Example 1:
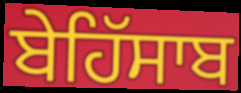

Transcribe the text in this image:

ਬੇਹਿੱਸਾਬ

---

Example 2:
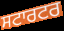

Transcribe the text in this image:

ਸਟਾਰਟਰ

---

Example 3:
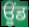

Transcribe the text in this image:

ਊਂਡ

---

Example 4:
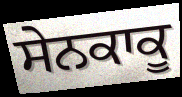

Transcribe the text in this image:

ਸੇਨਕਾਕੂ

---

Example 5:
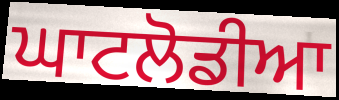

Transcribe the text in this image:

ਘਾਟਲੋਡੀਆ